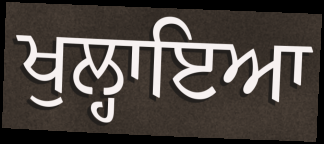
ਖੁਲ੍ਹਾਇਆ